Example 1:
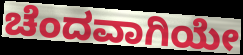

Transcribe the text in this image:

ಚೆಂದವಾಗಿಯೇ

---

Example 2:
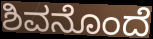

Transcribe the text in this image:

ಶಿವನೊಂದೆ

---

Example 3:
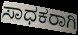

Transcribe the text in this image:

ಸಾಧಕರಾಗಿ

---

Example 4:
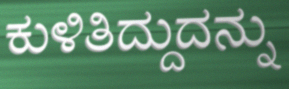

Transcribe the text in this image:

ಕುಳಿತಿದ್ದುದನ್ನು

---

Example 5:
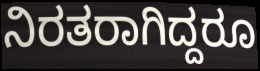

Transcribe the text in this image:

ನಿರತರಾಗಿದ್ದರೂ